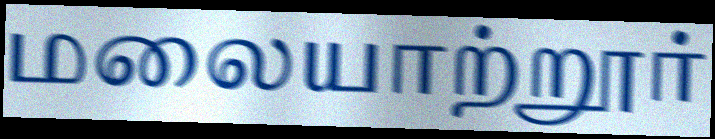
மலையாற்றூர்